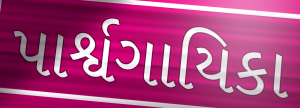
પાર્શ્વગાયિકા